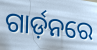
ଗାର୍ଡ଼ନରେ